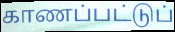
காணப்பட்டுப்